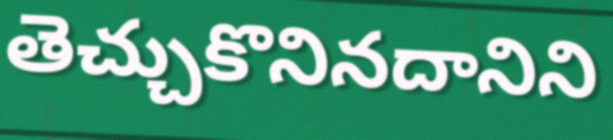
తెచ్చుకొనినదానిని